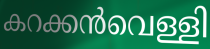
കറക്കൻവെള്ളി